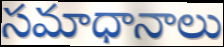
సమాధానాలు